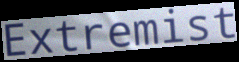
Extremist